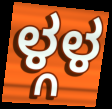
ಳ್ಗಳ